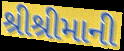
શ્રીશ્રીમાની